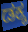
ಡಕ್ಕ